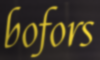
bofors